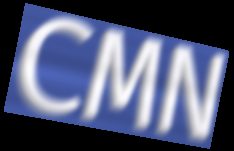
CMN